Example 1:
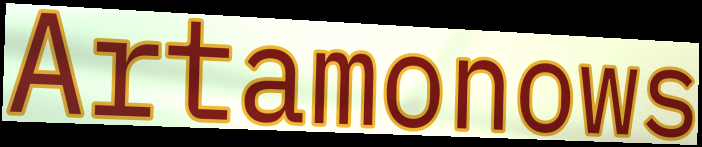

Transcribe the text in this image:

Artamonows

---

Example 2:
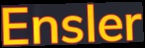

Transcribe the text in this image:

Ensler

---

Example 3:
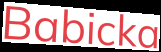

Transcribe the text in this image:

Babicka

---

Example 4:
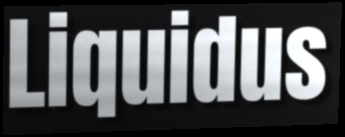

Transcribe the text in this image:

Liquidus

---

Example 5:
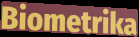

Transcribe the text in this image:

Biometrika